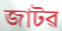
জাটৱ